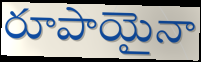
రూపాయైనా